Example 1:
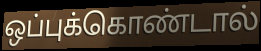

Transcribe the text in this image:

ஒப்புக்கொண்டால்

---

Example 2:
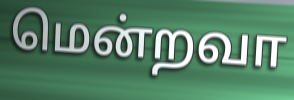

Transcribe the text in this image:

மென்றவா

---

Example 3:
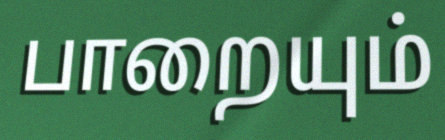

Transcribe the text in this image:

பாறையும்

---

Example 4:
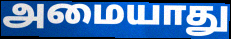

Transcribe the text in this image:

அமையாது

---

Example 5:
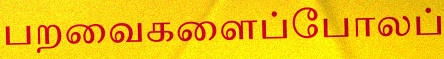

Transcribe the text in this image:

பறவைகளைப்போலப்